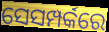
ସେସମ୍ପର୍କରେ